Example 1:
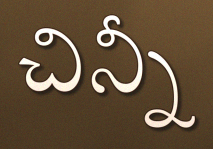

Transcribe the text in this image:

చిన్నీ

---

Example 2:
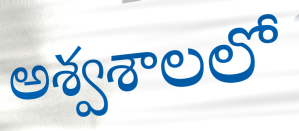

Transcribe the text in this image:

అశ్వశాలలో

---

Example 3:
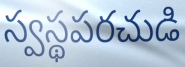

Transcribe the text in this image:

స్వస్థపరచుడి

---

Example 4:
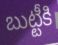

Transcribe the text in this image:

బుట్టీకి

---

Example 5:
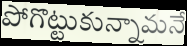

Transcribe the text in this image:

పోగొట్టుకున్నామనే